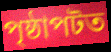
পৃষ্ঠাপটত